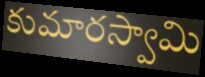
కుమారస్వామి